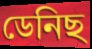
ডেনিছ